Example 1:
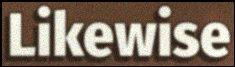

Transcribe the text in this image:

Likewise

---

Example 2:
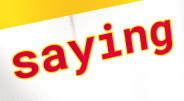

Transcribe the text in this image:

saying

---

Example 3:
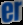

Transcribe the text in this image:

er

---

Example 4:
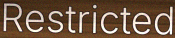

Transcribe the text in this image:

Restricted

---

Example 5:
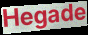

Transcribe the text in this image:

Hegade